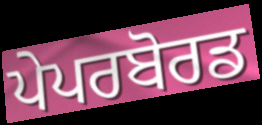
ਪੇਪਰਬੋਰਡ